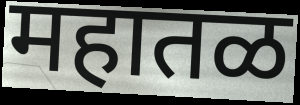
महातळ